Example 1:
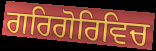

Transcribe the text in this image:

ਗਰਿਗੋਰਿਵਿਚ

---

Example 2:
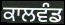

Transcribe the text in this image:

ਕਾਲਵੰਡ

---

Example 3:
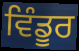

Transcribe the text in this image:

ਵਿੰਡੂਰ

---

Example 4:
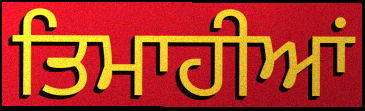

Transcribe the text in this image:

ਤਿਮਾਹੀਆਂ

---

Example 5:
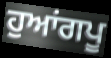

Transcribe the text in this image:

ਹੁਆਂਗਪੂ